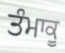
ਤੰਮਾਕੂ